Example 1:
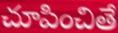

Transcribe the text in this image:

చూపించితే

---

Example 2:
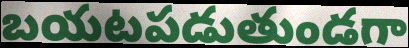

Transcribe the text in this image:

బయటపడుతుండగా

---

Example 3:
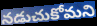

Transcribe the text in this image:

నడుచుకోమని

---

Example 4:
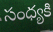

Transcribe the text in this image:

సంధ్యకి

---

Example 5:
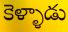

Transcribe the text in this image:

కెళ్ళాడు